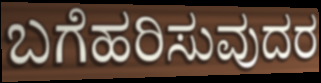
ಬಗೆಹರಿಸುವುದರ